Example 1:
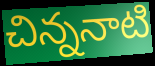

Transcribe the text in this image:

చిన్ననాటి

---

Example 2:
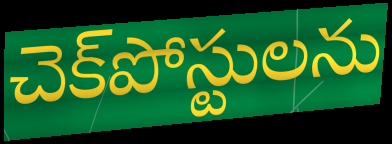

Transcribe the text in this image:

చెక్‌పోస్టులను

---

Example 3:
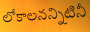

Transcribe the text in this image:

లోకాలనన్నిటినీ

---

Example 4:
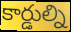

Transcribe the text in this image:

కార్డుల్ని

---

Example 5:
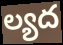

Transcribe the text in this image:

ల్యద